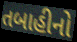
તબાહીનો